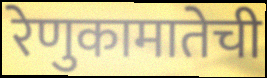
रेणुकामातेची